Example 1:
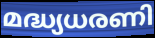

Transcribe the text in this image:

മദ്ധ്യധരണി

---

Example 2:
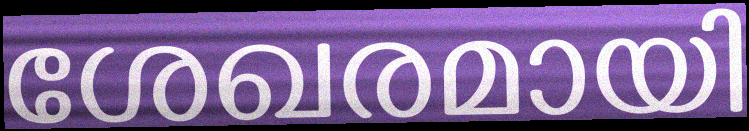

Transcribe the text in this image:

ശേഖരമായി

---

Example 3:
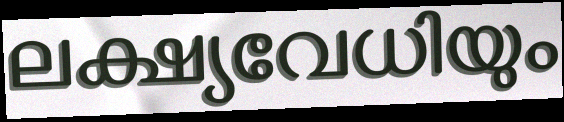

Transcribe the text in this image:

ലക്ഷ്യവേധിയും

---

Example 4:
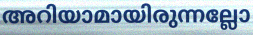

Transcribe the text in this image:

അറിയാമായിരുന്നല്ലോ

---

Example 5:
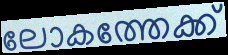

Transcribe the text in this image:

ലോകത്തേക്ക്